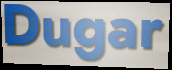
Dugar